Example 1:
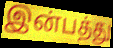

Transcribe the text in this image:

இன்பத்து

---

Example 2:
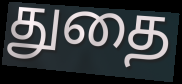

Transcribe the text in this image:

துதை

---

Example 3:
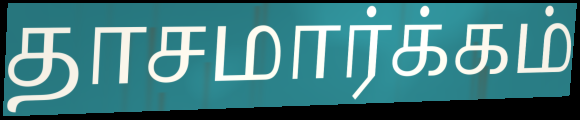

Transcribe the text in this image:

தாசமார்க்கம்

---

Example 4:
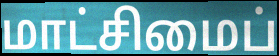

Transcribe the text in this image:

மாட்சிமைப்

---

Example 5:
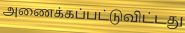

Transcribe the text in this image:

அணைக்கப்பட்டுவிட்டது